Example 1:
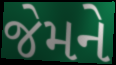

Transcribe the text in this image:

જેમને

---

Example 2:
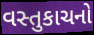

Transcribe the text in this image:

વસ્તુકાચનો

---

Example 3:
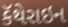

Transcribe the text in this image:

કૅથેરાઇન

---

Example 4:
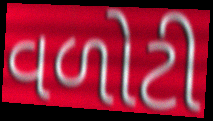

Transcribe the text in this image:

વળોટી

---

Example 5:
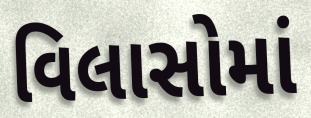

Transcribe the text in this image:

વિલાસોમાં